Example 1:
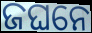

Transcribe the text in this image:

ଜଘନେ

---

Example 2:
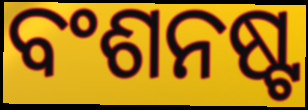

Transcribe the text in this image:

ବଂଶନଷ୍ଟ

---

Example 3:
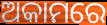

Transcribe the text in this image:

ଅକାମରେ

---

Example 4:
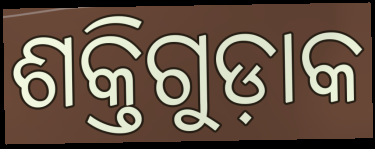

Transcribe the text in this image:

ଶକ୍ତିଗୁଡ଼ାକ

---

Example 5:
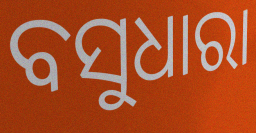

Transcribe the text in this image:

ବସୁଧାରା